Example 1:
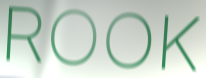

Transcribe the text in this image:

ROOK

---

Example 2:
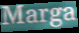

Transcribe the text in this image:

Marga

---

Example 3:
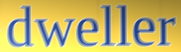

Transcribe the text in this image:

dweller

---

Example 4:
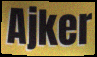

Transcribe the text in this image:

Ajker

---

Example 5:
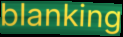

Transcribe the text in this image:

blanking